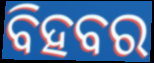
ବିହବର